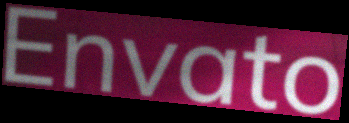
Envato